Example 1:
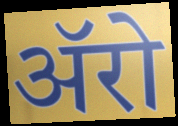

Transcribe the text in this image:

ॲरो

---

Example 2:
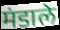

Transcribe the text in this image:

मंडाले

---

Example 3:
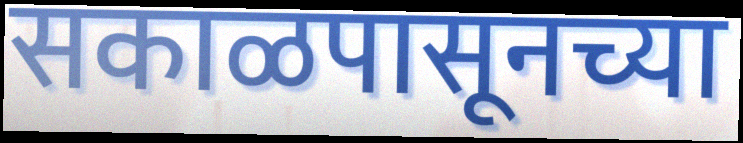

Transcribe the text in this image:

सकाळपासूनच्या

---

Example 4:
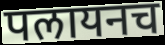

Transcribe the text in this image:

पलायनच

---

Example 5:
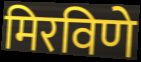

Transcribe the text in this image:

मिरविणे